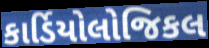
કાર્ડિયોલોજિકલ